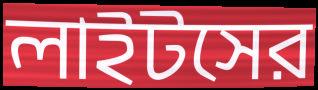
লাইটসের